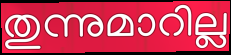
തുന്നുമാറില്ല